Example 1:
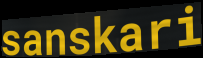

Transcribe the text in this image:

sanskari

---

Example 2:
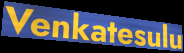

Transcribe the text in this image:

Venkatesulu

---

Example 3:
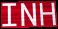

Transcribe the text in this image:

INH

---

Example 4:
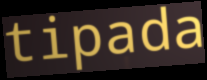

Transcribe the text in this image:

tipada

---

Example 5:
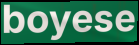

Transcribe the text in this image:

boyese